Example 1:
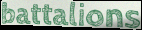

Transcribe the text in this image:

battalions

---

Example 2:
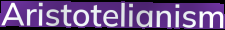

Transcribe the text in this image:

Aristotelianism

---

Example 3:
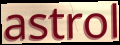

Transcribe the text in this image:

astrol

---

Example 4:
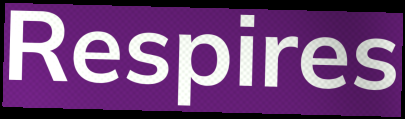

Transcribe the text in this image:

Respires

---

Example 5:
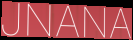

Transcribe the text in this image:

JNANA